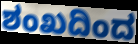
ಶಂಖದಿಂದ